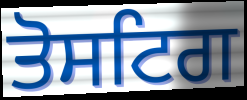
ਤੋਸਟਿਗ